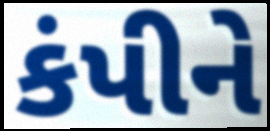
કંપીને